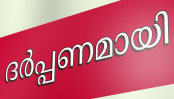
ദർപ്പണമായി